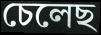
চেলেছ